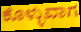
ಕೊಳ್ಳುವಾಗ